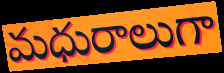
మధురాలుగా